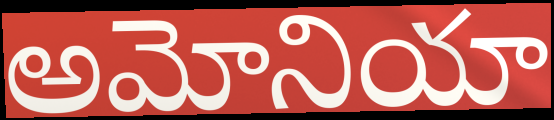
అమోనియా